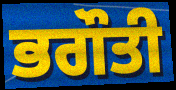
ਭਗੌਤੀ